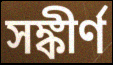
সঙ্কীর্ণ